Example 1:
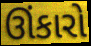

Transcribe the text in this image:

ઊંકારો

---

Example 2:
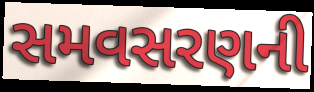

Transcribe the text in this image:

સમવસરણની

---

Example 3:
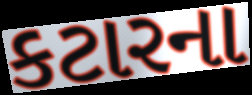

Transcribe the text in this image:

કટારના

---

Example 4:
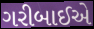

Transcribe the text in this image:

ગરીબાઈએ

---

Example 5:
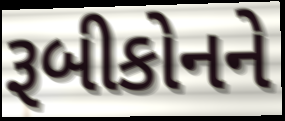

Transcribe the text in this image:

રૂબીકોનને